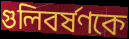
গুলিবর্ষণকে